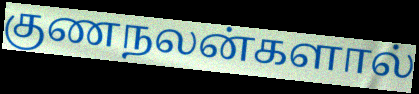
குணநலன்களால்